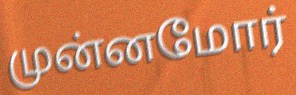
முன்னமோர்